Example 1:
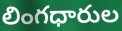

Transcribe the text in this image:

లింగధారుల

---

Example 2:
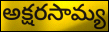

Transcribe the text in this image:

అక్షరసామ్య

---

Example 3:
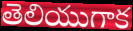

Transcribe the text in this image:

తెలియుగాక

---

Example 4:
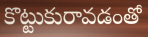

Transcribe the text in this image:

కొట్టుకురావడంతో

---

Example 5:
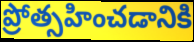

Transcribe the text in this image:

ప్రోత్సహించడానికి